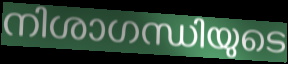
നിശാഗന്ധിയുടെ